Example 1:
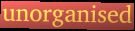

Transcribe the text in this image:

unorganised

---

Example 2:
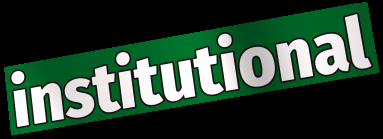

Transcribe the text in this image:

institutional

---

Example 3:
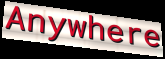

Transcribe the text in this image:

Anywhere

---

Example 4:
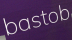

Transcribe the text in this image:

bastob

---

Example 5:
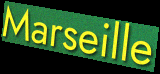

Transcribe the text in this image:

Marseille